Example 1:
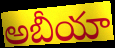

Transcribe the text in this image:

అబీయా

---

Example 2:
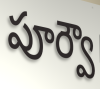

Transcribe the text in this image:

పూర్వౌ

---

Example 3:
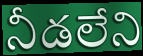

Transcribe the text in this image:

నీడలేని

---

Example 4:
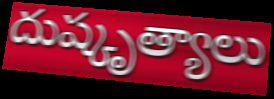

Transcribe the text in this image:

దుష్కృత్యాలు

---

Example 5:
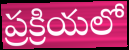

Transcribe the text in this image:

ప్రక్రియలో